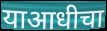
याआधीचा